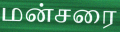
மன்சரை